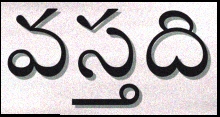
వస్తది